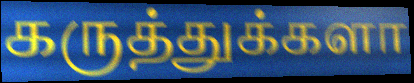
கருத்துக்களா